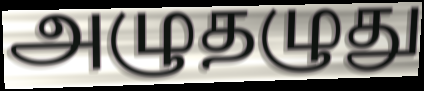
அழுதழுது